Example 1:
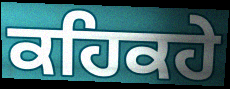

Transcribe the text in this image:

ਕਹਿਕਹੇ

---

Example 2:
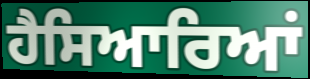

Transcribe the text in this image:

ਹੈਸਿਆਰਿਆਂ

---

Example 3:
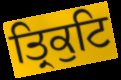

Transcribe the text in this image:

ਤ੍ਰਿਕੁਟਿ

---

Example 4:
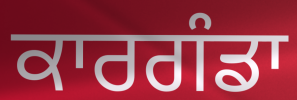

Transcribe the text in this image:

ਕਾਰਗੰਡਾ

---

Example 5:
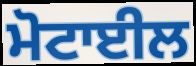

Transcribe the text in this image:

ਮੋਟਾਈਲ